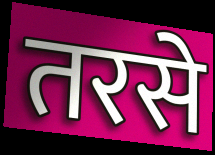
तरसे